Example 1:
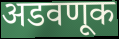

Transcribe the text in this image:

अडवणूक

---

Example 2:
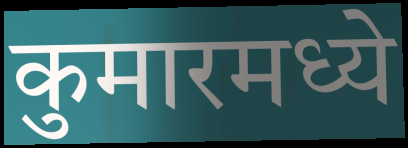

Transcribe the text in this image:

कुमारमध्ये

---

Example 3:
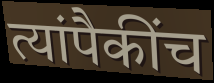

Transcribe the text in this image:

त्यांपैकींच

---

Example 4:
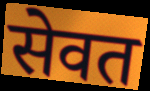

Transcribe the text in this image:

सेवत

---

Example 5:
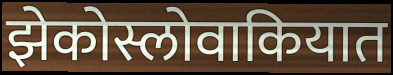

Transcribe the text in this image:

झेकोस्लोवाकियात